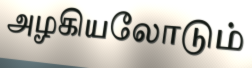
அழகியலோடும்